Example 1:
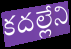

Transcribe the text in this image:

కదల్లేని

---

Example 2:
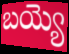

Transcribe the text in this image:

బయ్యె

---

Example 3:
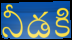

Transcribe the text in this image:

నీడకి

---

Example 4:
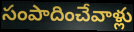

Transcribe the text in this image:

సంపాదించేవాళ్లు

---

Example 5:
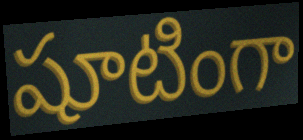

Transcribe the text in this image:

షూటింగా